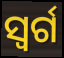
ସ୍ବର୍ଗ